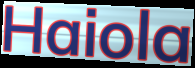
Haiola